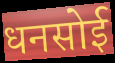
धनसोई